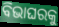
ବିଭାଘରକୁ